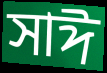
সাঈ